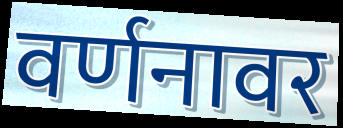
वर्णनावर